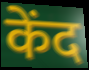
केंद